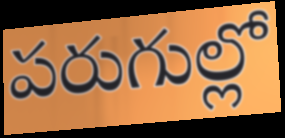
పరుగుల్లో